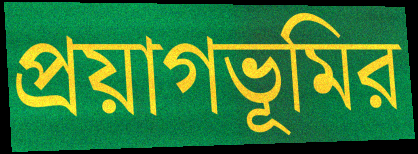
প্রয়াগভূমির